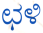
ಛಳಿ